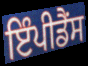
ਇੰਪੀਡੈਂਸ